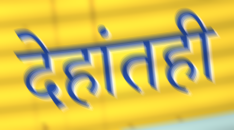
देहांतही